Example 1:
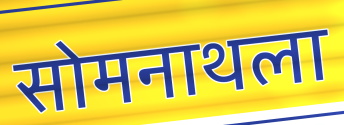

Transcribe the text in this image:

सोमनाथला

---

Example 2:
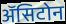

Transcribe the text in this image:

ॲसिटोन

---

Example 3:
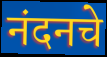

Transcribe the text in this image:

नंदनचे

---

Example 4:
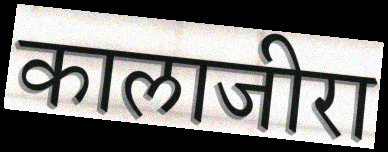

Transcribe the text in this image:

कालाजीरा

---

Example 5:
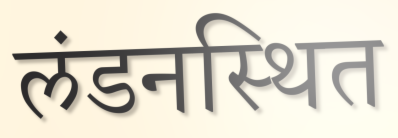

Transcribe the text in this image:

लंडनस्थित